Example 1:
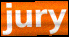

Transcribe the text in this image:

jury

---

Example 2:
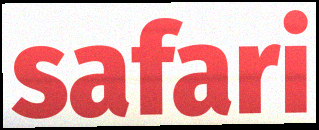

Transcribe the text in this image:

safari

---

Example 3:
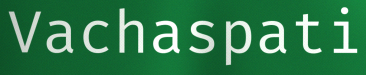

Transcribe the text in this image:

Vachaspati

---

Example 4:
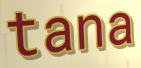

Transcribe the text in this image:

tana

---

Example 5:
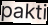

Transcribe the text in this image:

pakti